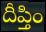
దీప్తిం